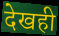
देखही